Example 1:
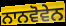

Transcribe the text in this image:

ਨਾਨਵੋਵੇਨ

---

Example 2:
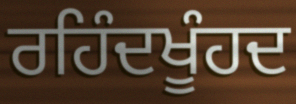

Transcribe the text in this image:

ਰਹਿੰਦਖੂੰਹਦ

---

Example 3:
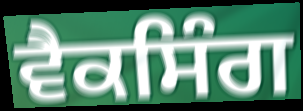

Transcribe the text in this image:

ਵੈਕਸਿੰਗ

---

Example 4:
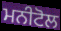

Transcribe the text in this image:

ਮਨੀਟੋਲ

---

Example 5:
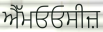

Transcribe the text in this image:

ਐੱਮਓਓਸੀਜ਼